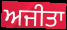
ਅਜੀਤਾ